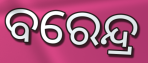
ବରେନ୍ଦ୍ର